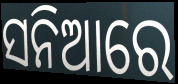
ସନିଆରେ